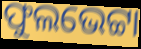
ଫୁଲଭେଟ୍ଟା